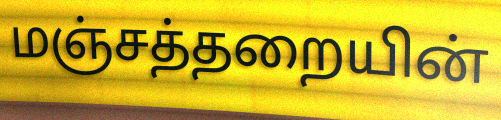
மஞ்சத்தறையின்